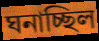
ঘনাচ্ছিল